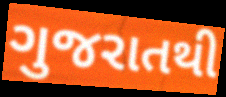
ગુજરાતથી